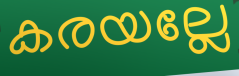
കരയല്ലേ